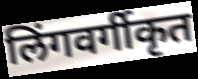
लिंगवर्गीकृत